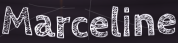
Marceline